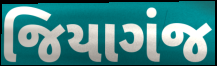
જિયાગંજ